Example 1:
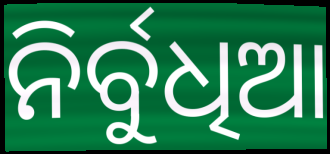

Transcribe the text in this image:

ନିର୍ବୁଧିଆ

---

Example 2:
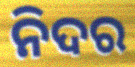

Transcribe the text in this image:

ନିଦର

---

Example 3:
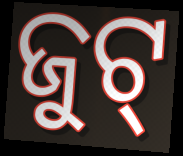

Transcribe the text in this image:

ଜୁଟ୍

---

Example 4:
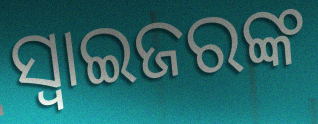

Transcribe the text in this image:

ସ୍ଵାଇଜରଙ୍କ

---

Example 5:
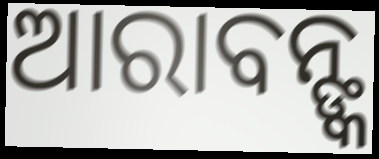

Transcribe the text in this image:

ଆରାବନ୍ଙ୍କ